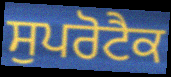
ਸੁਪਰੋਟੈਕ